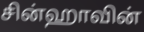
சின்ஹாவின்